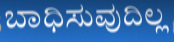
ಬಾಧಿಸುವುದಿಲ್ಲ